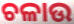
ଚଳାଉ